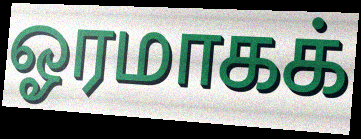
ஓரமாகக்